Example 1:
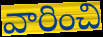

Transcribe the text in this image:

వారించి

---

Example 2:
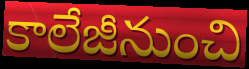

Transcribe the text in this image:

కాలేజీనుంచి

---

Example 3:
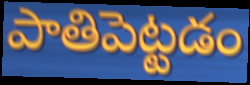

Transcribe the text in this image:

పాతిపెట్టడం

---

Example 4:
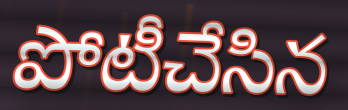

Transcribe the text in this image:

పోటీచేసిన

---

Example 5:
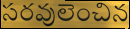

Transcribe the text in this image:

సరవులెంచిన